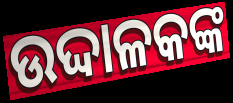
ଉଦ୍ଦାଳକଙ୍କ